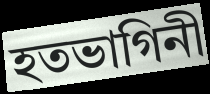
হতভাগিনী